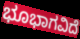
ಭೂಭಾಗವಿದೆ